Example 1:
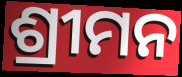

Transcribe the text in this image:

ଶ୍ରୀମନ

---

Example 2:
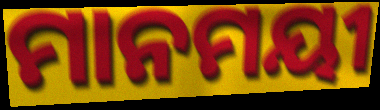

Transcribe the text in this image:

ମାନମୟୀ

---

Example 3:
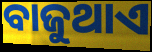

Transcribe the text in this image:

ବାଜୁଥାଏ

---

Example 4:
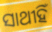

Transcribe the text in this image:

ସାଥୀହିଁ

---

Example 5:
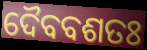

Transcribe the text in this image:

ଦୈବବଶତଃ